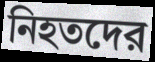
নিহতদের